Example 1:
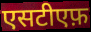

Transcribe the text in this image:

एसटीएफ़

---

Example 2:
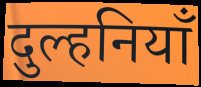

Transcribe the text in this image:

दुल्हनियाँ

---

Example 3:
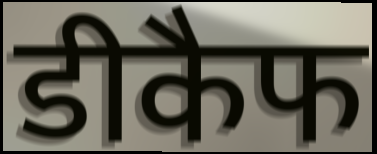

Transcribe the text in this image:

डीकैफ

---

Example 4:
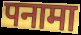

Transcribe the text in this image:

पनामा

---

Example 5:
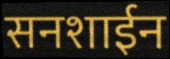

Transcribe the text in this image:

सनशाईन